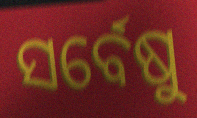
ସର୍ବେଷୁ